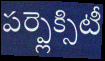
పర్ప్లెక్సిటీ